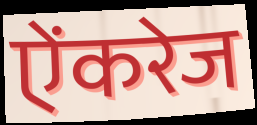
ऐंकरेज